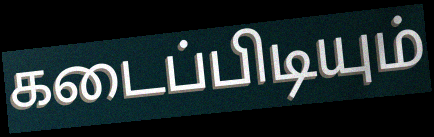
கடைப்பிடியும்